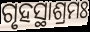
ଗୃହସ୍ଥାଶ୍ରମଃ